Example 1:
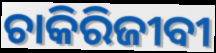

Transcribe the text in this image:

ଚାକିରିଜୀବୀ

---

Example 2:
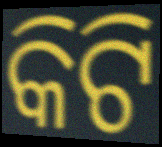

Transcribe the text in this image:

କିଟି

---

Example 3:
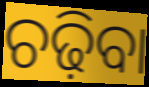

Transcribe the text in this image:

ଚଢ଼ିବା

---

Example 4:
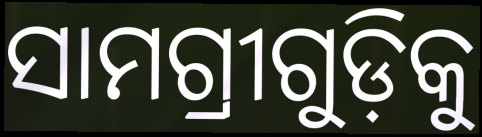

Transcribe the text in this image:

ସାମଗ୍ରୀଗୁଡ଼ିକୁ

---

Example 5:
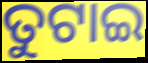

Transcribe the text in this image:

ତୁଟାଇ